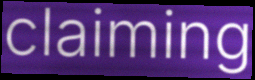
claiming